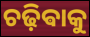
ଚଢ଼ିଵାକୁ